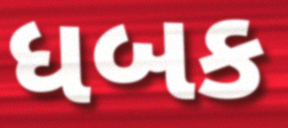
ધબક